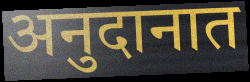
अनुदानात